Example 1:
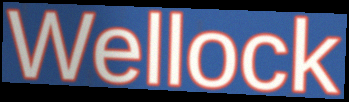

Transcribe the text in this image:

Wellock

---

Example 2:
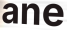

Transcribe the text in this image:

ane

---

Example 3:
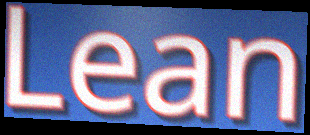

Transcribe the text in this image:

Lean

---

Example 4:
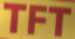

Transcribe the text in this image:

TFT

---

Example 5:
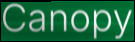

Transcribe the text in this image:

Canopy